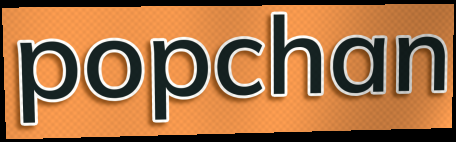
popchan